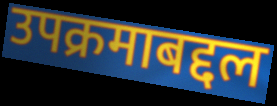
उपक्रमाबद्दल